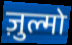
ज़ुल्मो